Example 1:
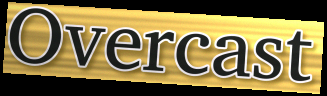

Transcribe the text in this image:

Overcast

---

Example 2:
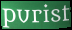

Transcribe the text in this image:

purist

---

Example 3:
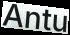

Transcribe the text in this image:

Antu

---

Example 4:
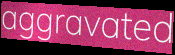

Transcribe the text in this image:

aggravated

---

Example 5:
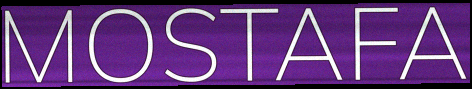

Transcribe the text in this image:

MOSTAFA